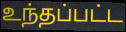
உந்தப்பட்ட